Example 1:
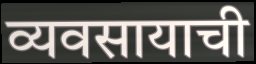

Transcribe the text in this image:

व्यवसायाची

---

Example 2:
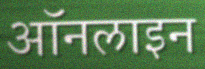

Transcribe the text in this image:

ऑनलाइन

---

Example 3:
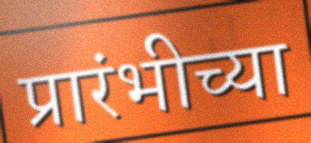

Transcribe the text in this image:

प्रारंभीच्या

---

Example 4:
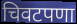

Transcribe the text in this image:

चिवटपणा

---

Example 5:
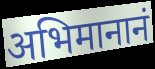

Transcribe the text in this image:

अभिमानानं